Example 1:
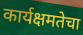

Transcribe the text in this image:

कार्यक्षमतेचा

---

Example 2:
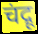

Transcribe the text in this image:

चंद्रू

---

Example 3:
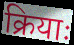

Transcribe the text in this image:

क्रियाः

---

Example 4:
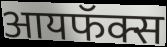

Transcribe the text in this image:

आयफॅक्स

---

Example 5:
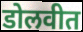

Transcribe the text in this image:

डोलवीत